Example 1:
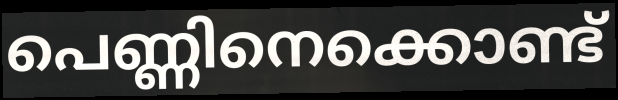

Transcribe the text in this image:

പെണ്ണിനെക്കൊണ്ട്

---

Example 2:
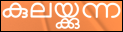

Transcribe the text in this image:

കുലയ്ക്കുന്ന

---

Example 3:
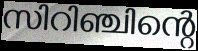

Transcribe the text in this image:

സിറിഞ്ചിന്റെ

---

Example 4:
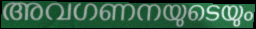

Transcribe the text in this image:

അവഗണനയുടെയും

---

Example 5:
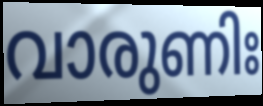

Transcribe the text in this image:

വാരുണിഃ